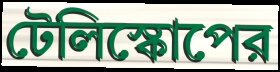
টেলিস্কোপের